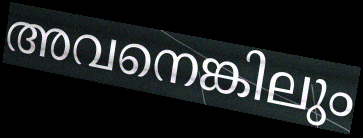
അവനെങ്കിലും